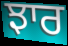
ਝਾਰ